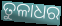
ତୁଳାଧର